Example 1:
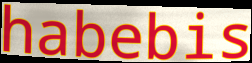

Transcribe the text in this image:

habebis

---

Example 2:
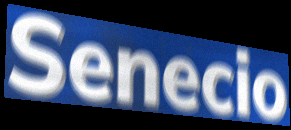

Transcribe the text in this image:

Senecio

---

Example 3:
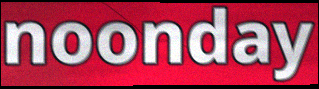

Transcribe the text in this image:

noonday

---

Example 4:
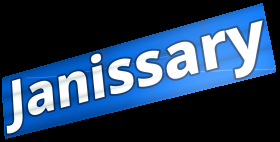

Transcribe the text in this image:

Janissary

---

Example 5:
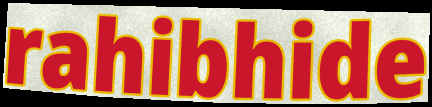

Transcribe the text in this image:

rahibhide